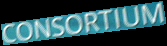
CONSORTIUM